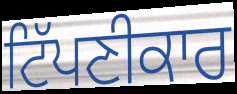
ਟਿੱਪਣੀਕਾਰ